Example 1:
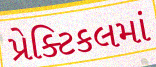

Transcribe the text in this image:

પ્રેક્ટિકલમાં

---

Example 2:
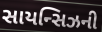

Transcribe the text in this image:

સાયન્સિઝની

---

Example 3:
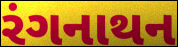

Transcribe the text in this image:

રંગનાથન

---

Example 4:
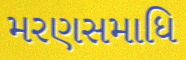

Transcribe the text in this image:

મરણસમાધિ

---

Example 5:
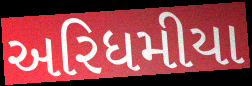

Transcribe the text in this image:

અરિધમીયા